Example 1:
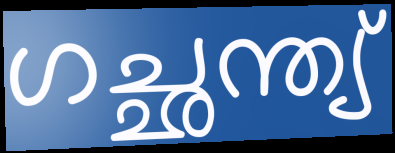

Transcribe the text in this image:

ഗച്ഛന്ത്യ്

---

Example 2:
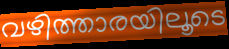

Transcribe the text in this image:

വഴിത്താരയിലൂടെ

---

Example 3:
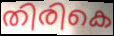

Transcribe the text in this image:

തിരികെ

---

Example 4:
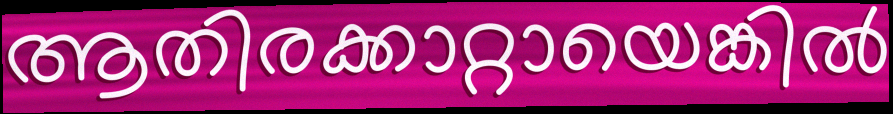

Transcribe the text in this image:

ആതിരക്കാറ്റായെങ്കിൽ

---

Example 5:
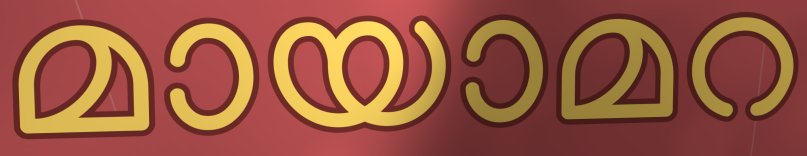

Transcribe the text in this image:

മായാമറ